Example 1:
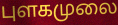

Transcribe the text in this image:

புளகமுலை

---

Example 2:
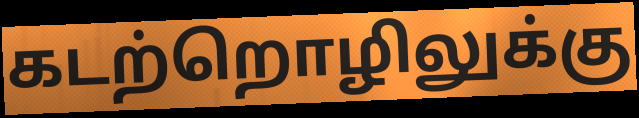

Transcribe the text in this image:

கடற்றொழிலுக்கு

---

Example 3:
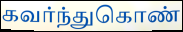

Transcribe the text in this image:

கவர்ந்துகொண்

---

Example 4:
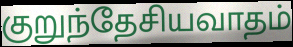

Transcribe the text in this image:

குறுந்தேசியவாதம்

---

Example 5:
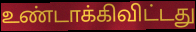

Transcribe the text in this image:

உண்டாக்கிவிட்டது